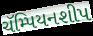
ચૅમ્પિયનશીપ